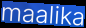
maalika